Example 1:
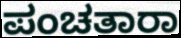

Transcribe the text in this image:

ಪಂಚತಾರಾ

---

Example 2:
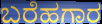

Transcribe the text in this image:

ಬರೆಹಗಾರ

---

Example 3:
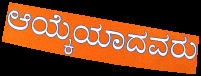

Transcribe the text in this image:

ಆಯ್ಕೆಯಾದವರು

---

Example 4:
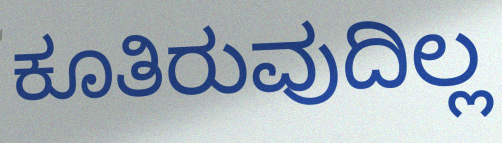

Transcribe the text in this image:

ಕೂತಿರುವುದಿಲ್ಲ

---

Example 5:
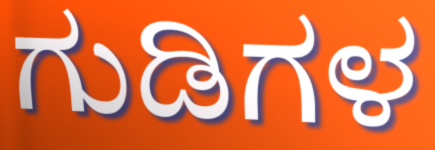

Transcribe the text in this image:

ಗುಡಿಗಳ